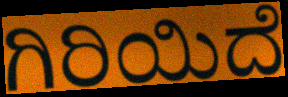
ಗಿರಿಯಿದೆ